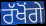
ਰੱਖੋਂਗੇ